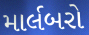
માર્લબરો